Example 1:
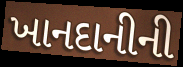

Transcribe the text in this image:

ખાનદાનીની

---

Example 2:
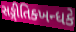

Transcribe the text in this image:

સઙ્ગીતિક્ખન્ધકે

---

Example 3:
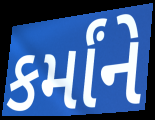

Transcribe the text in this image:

કર્માંને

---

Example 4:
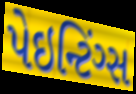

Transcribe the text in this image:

પેઇન્ટિંગ્સ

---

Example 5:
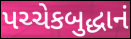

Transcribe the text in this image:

પચ્ચેકબુદ્ધાનં